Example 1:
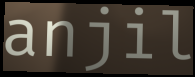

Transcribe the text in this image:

anjil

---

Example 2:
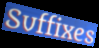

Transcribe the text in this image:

Suffixes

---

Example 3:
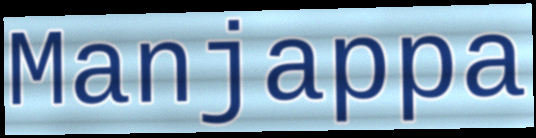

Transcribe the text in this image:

Manjappa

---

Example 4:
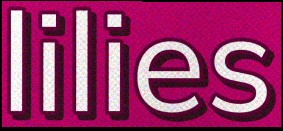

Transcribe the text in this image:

lilies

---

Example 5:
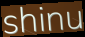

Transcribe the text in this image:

shinu